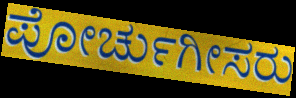
ಪೋರ್ಚುಗೀಸರು